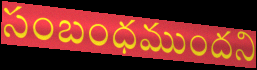
సంబంధముందని